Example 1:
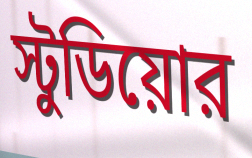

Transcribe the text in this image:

স্টুডিয়োর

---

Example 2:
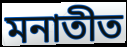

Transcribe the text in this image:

মনাতীত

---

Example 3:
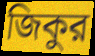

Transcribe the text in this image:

জিকুর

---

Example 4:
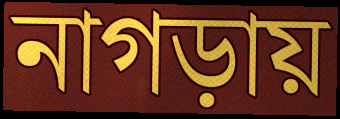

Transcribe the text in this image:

নাগড়ায়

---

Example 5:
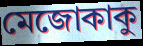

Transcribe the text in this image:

মেজোকাকু